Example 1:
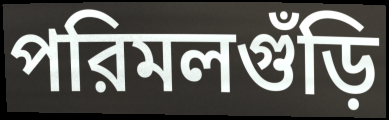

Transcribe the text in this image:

পরিমলগুঁড়ি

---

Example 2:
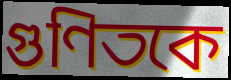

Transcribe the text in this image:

গুণিতকে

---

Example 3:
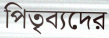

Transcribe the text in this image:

পিতৃব্যদের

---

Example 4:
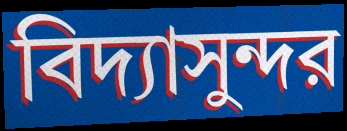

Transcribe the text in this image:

বিদ্যাসুন্দর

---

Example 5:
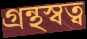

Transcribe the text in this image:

গ্রন্থস্বত্ব